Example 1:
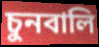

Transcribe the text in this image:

চুনবালি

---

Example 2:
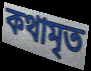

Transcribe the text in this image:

কথামৃত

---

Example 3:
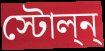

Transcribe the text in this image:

স্টোল্ন্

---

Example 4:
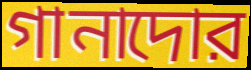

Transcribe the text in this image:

গানাদোর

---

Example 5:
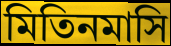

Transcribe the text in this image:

মিতিনমাসি